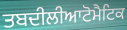
ਤਬਦੀਲੀਆਟੋਮੈਟਿਕ